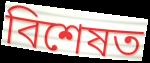
বিশেষত